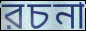
রচনা